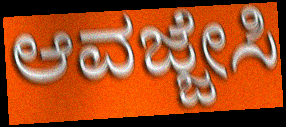
ಆವಜ್ಜೇಸಿ